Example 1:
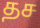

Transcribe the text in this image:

தச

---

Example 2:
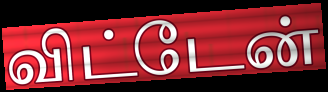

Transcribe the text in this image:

விட்டேன்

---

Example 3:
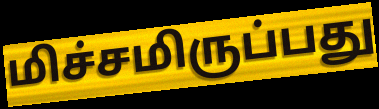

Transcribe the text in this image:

மிச்சமிருப்பது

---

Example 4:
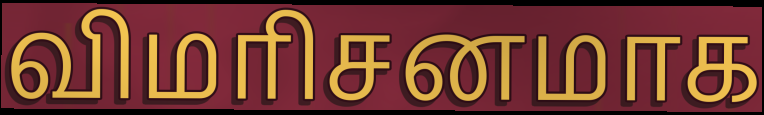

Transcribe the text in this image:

விமரிசனமாக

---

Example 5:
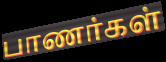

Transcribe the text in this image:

பாணர்கள்